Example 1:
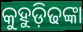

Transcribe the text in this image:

କୁହୁଡ଼ିଢଙ୍କା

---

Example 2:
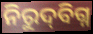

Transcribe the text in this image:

ନିରୁଦ୍‌ବିଗ୍ନ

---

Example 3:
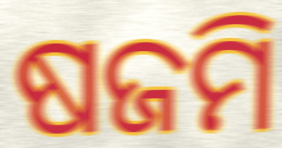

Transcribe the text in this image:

ଷଜମି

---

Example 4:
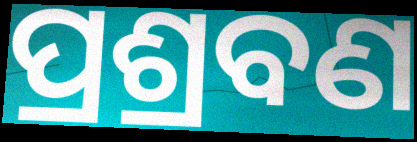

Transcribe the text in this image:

ପ୍ରଶ୍ରବଣ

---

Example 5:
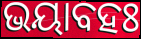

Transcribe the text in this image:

ଭୟାବହଃ